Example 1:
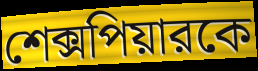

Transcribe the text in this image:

শেক্সপিয়ারকে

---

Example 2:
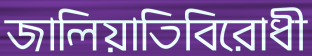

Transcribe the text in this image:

জালিয়াতিবিরোধী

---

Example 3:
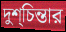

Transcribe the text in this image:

দুশ্‌চিন্তার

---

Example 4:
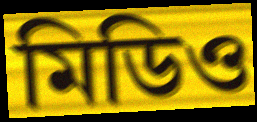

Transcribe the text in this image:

মিডিও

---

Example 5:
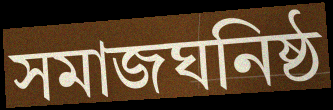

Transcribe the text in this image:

সমাজঘনিষ্ঠ